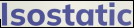
Isostatic